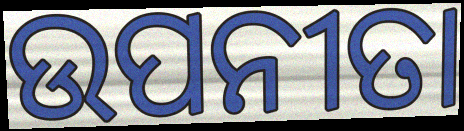
ଉପନୀତା